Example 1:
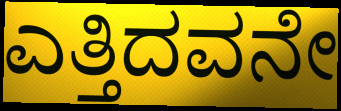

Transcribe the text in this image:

ಎತ್ತಿದವನೇ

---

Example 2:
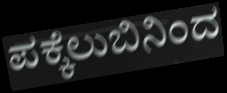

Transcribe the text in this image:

ಪಕ್ಕೆಲುಬಿನಿಂದ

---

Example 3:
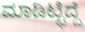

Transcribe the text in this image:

ಮಾಡಿಟ್ಟಿದ್ದೆ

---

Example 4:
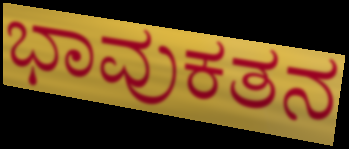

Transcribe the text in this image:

ಭಾವುಕತನ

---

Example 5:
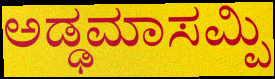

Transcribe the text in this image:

ಅಡ್ಢಮಾಸಮ್ಪಿ